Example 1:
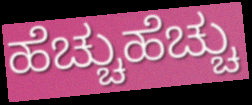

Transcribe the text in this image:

ಹೆಚ್ಚುಹೆಚ್ಚು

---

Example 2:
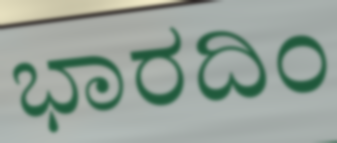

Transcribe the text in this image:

ಭಾರದಿಂ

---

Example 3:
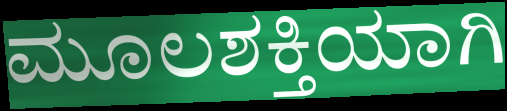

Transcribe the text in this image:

ಮೂಲಶಕ್ತಿಯಾಗಿ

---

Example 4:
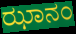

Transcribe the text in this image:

ಝಾನಂ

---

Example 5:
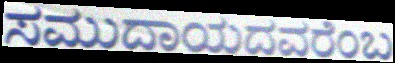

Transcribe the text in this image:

ಸಮುದಾಯದವರೆಂಬ